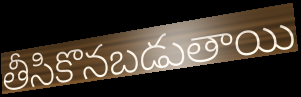
తీసికొనబడుతాయి